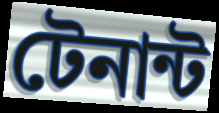
টেনান্ট